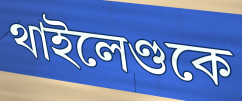
থাইলেণ্ডকে